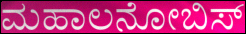
ಮಹಾಲನೋಬಿಸ್